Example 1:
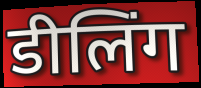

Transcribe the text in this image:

डीलिंग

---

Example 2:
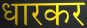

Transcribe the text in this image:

धारकर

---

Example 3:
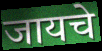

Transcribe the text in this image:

जायचे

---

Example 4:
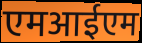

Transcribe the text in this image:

एमआईएम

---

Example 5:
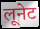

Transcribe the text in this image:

लूनेट